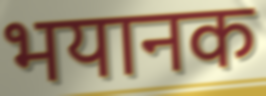
भयानक